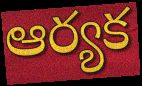
ఆర్యక